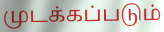
முடக்கப்படும்